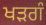
ਖੜਗੰ